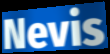
Nevis